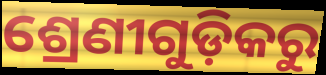
ଶ୍ରେଣୀଗୁଡ଼ିକରୁ